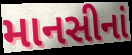
માનસીનાં